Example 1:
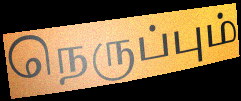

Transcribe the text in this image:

நெருப்பும்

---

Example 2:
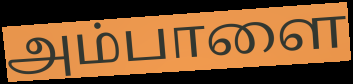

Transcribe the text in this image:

அம்பாளை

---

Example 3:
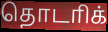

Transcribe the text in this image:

தொடரிக்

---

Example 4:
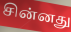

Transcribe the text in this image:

சின்னது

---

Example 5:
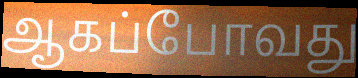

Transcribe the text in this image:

ஆகப்போவது